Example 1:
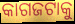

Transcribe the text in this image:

କାଗଜଟାକୁ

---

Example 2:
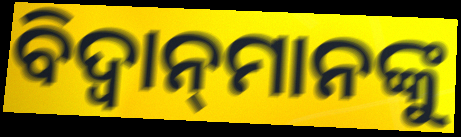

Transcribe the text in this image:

ବିଦ୍ଵାନ୍‌ମାନଙ୍କୁ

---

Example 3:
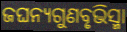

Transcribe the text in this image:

ଜଘନ୍ୟଗୁଣବୃଭିସ୍ମା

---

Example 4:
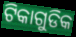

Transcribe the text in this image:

ଟିକାଗୁଡିକ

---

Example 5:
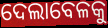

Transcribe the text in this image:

ଦେଲାବେଳକୁ